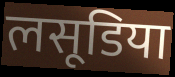
लसूडिया